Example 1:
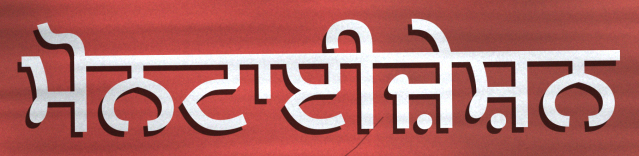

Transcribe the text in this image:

ਮੋਨਟਾਈਜ਼ੇਸ਼ਨ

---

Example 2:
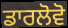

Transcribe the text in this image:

ਡਾਰਲੋਵੋ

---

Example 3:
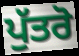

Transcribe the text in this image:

ਪੁੱਤਰੋ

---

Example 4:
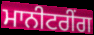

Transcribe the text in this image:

ਮਾਨੀਟਰੀਂਗ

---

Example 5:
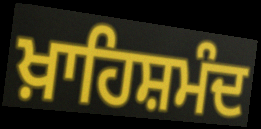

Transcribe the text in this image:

ਖ਼ਾਹਿਸ਼ਮੰਦ